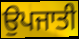
ਉਪਜਾਤੀ